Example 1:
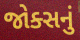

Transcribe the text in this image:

જોક્સનું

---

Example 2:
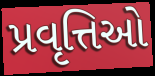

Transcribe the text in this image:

પ્રવૃત્તિઓ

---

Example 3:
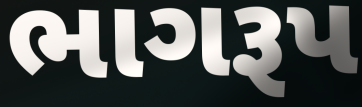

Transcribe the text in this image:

ભાગરૂપ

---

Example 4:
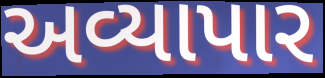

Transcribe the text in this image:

અવ્યાપાર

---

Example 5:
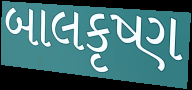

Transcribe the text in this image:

બાલકૃષ્ણ